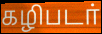
கழிபடர்